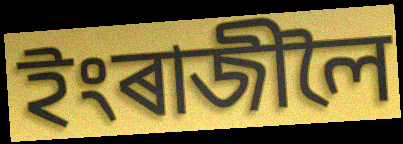
ইংৰাজীলৈ